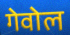
गेवोल